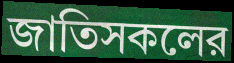
জাতিসকলের